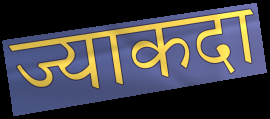
ज्याकदा